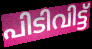
പിടിവിട്ട്